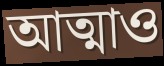
আত্মাও